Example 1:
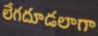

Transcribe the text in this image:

లేగదూడలాగా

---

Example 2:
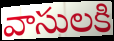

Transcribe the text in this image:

వాసులకి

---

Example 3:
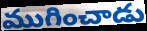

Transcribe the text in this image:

ముగించాడు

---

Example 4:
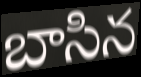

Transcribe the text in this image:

బాసిన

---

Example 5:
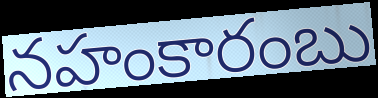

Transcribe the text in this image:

నహంకారంబు